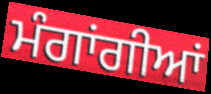
ਮੰਗਾਂਗੀਆਂ